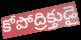
కోపోద్రిక్తుడై